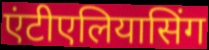
एंटीएलियासिंग